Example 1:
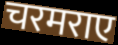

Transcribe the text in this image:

चरमराए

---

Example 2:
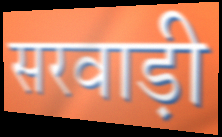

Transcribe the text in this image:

सरवाड़ी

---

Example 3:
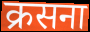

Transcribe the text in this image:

क्रसना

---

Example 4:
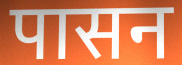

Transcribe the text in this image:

पासन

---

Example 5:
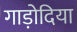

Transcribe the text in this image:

गाड़ोदिया